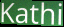
Kathi